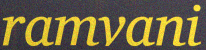
ramvani